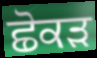
ਛੋਕੜ